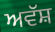
ਅਵੱਸ਼